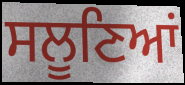
ਸਲੂਣਿਆਂ